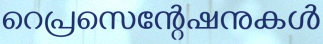
റെപ്രസെന്റേഷനുകൾ